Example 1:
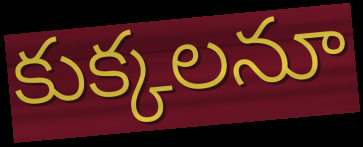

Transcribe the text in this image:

కుక్కలనూ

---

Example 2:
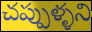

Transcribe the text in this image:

చప్పుళ్ళని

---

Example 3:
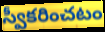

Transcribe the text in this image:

స్వీకరించటం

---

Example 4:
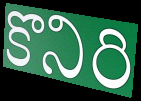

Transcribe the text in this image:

కొనిరి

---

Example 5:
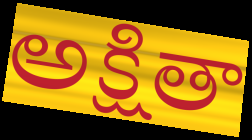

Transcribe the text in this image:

అక్షితా